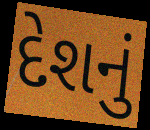
દેશનું